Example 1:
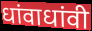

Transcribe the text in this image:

धांवाधांवी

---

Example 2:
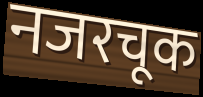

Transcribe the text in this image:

नजरचूक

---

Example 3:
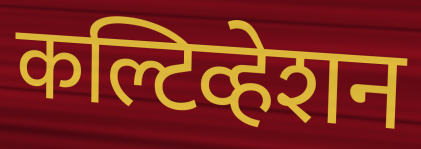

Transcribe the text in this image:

कल्टिव्हेशन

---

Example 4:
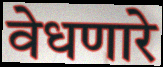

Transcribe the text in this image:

वेधणारे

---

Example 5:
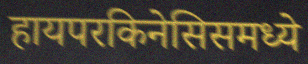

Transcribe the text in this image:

हायपरकिनेसिसमध्ये